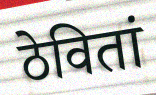
ठेवितां